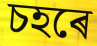
চহৰে